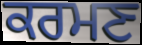
ਕਰਮਣ